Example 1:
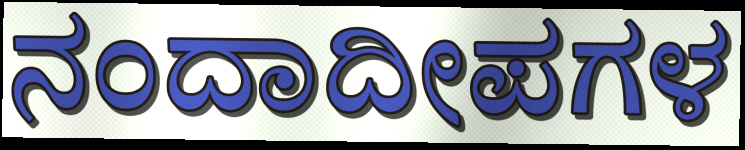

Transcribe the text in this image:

ನಂದಾದೀಪಗಳ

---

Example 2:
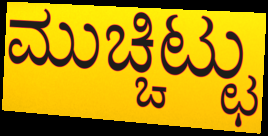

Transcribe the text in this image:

ಮುಚ್ಚಿಟ್ಟು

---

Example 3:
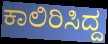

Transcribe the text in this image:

ಕಾಲಿರಿಸಿದ್ದ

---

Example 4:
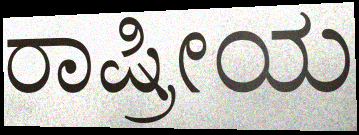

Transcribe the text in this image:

ರಾಷ್ರೀಯ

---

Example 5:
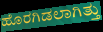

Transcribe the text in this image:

ಹೊರಗಿಡಲಾಗಿತ್ತು